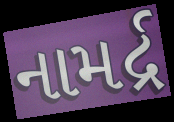
નામર્દ્ર